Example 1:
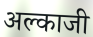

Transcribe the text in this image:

अल्काजी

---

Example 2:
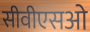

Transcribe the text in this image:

सीवीएसओ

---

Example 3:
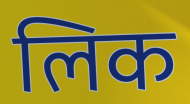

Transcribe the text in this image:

लिक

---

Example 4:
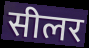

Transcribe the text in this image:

सीलर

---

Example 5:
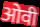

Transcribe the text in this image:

ओवी